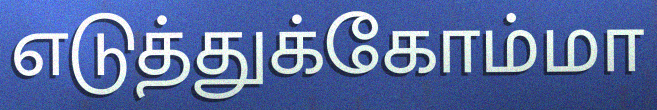
எடுத்துக்கோம்மா